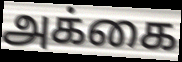
அக்கை